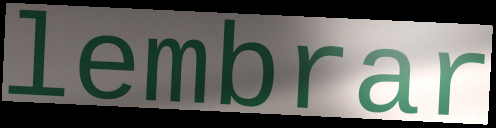
lembrar